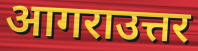
आगराउत्तर